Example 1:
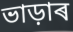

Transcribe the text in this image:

ভাড়াৰ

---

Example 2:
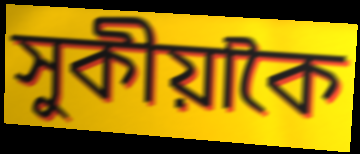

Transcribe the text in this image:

সুকীয়াকৈ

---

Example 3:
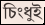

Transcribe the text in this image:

চিংধুই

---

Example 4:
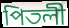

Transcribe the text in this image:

পিতলী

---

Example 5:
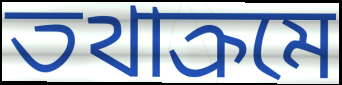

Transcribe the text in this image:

তথাক্ৰমে